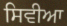
ਸਿਵੀਆ